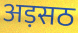
अड़सठ